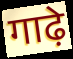
गाढ़े